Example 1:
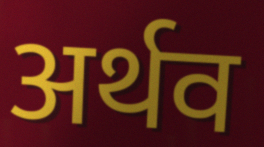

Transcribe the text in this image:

अर्थव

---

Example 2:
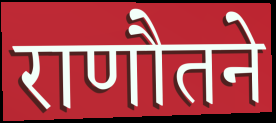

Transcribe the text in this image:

राणौतने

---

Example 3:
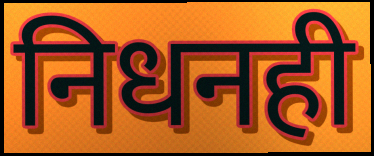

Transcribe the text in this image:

निधनही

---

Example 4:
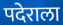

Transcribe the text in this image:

पदेराला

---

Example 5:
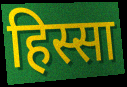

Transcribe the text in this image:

हिस्सा